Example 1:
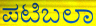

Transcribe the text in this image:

ಪಟಿಬಲಾ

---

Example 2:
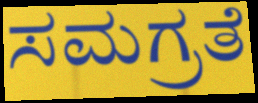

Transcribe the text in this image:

ಸಮಗ್ರತೆ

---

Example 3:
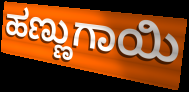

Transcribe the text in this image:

ಹಣ್ಣುಗಾಯಿ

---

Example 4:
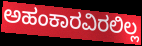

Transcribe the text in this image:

ಅಹಂಕಾರವಿರಲಿಲ್ಲ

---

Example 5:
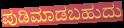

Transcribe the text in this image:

ಪುಡಿಮಾಡಬಹುದು